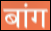
बांग